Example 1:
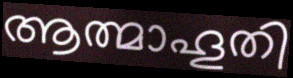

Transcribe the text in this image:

ആത്മാഹൂതി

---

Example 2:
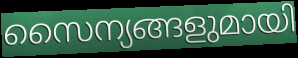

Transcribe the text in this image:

സൈന്യങ്ങളുമായി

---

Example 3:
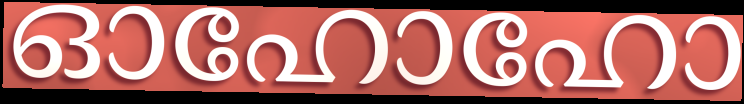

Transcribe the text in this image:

ഓഹോഹോ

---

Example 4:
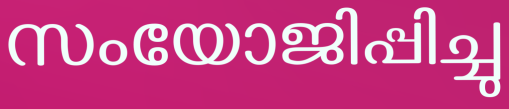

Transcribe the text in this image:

സംയോജിപ്പിച്ചു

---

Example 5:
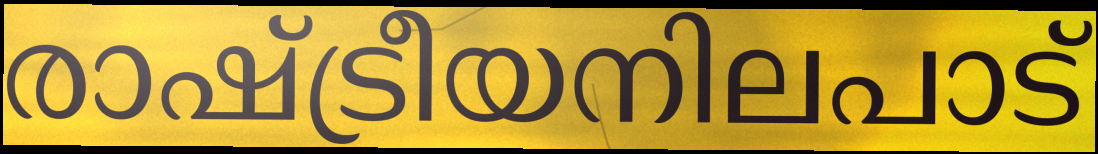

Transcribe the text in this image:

രാഷ്ട്രീയനിലപാട്